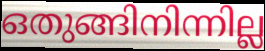
ഒതുങ്ങിനിന്നില്ല